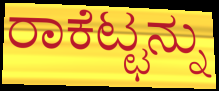
ರಾಕೆಟ್ಟನ್ನು